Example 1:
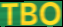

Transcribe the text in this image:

TBO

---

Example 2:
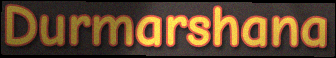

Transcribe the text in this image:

Durmarshana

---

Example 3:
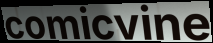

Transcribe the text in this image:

comicvine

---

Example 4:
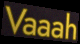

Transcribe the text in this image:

Vaaah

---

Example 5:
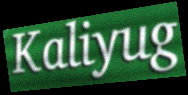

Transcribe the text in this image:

Kaliyug